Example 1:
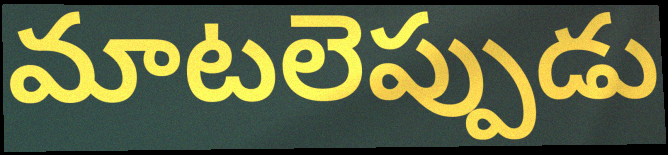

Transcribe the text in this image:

మాటలెప్పుడు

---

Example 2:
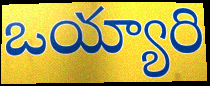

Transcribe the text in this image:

ఒయ్యారి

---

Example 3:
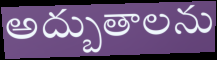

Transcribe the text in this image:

అద్బుతాలను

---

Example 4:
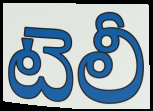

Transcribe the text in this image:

టెలీ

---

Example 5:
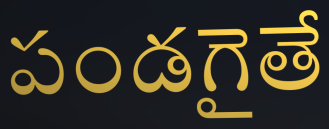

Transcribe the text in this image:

పండగైతే